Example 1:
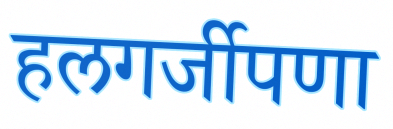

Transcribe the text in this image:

हलगर्जीपणा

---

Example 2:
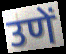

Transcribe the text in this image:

उणें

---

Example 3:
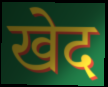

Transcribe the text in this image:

खेद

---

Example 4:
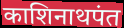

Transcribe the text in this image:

काशिनाथपंत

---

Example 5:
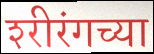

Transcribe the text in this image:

श्रीरंगच्या